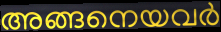
അങ്ങനെയവർ